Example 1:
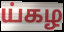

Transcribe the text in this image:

ய்கழ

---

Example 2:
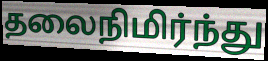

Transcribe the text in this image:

தலைநிமிர்ந்து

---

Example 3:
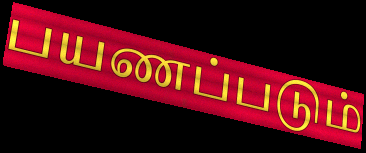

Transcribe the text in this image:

பயணப்படும்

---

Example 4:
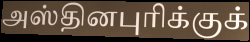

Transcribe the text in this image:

அஸ்தினபுரிக்குக்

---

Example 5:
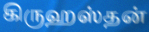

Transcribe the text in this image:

கிருஹஸ்தன்